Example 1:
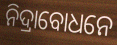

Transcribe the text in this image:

ନିଦ୍ରାବୋଧନେ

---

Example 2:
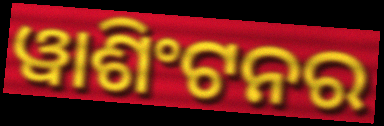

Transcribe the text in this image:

ୱାଶିଂଟନର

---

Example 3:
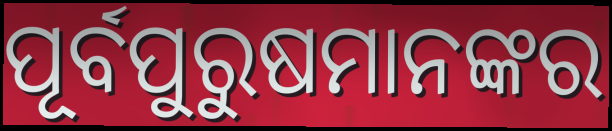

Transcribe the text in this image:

ପୂର୍ବପୁରୁଷମାନଙ୍କର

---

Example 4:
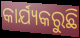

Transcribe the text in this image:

କାର୍ଯ୍ୟକରୁଛି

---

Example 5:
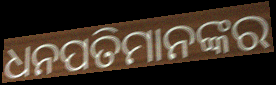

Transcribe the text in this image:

ଧନପତିମାନଙ୍କର